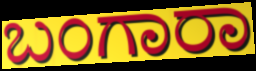
ಬಂಗಾರಾ